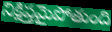
నిక్షిప్తమైపోతుంది